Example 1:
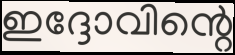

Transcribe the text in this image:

ഇദ്ദോവിന്റെ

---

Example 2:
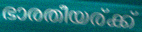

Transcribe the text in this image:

ഭാരതീയര്ക്ക്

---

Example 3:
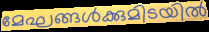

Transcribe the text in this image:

മേഘങ്ങൾക്കുമിടയിൽ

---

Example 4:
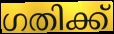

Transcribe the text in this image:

ഗതിക്ക്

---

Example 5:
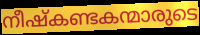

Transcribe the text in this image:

നീഷ്കണ്ടകന്മാരുടെ